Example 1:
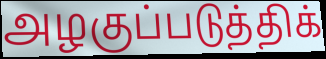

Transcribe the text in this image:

அழகுப்படுத்திக்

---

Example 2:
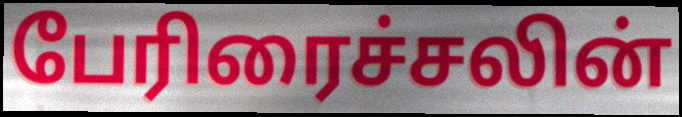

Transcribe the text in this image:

பேரிரைச்சலின்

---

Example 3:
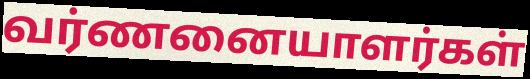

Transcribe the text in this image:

வர்ணனையாளர்கள்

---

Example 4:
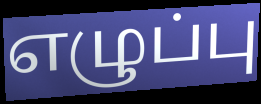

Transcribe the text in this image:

எழுப்பு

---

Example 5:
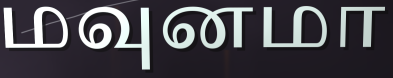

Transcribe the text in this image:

மவுனமா